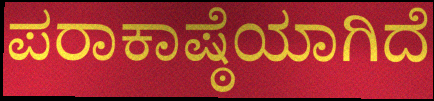
ಪರಾಕಾಷ್ಠೆಯಾಗಿದೆ